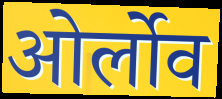
ओर्लोव